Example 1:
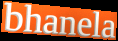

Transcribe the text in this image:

bhanela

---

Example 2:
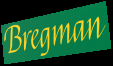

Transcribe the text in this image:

Bregman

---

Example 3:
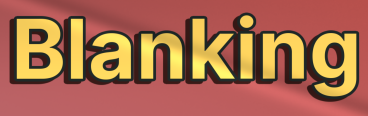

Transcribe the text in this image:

Blanking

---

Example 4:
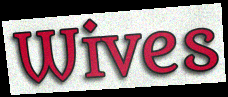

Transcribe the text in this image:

Wives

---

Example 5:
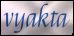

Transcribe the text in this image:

vyakta